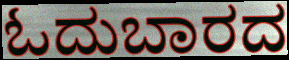
ಓದುಬಾರದ